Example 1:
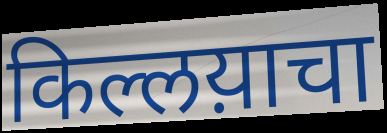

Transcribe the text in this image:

किल्लय़ाचा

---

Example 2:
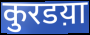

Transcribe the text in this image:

कुरडय़ा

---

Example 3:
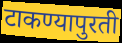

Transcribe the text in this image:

टाकण्यापुरती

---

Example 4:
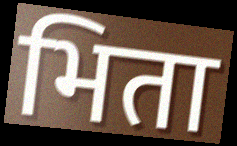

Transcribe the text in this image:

भिता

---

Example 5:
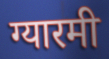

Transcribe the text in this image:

ग्यारमी